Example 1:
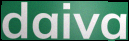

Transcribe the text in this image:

daiva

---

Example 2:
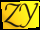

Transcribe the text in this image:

ZY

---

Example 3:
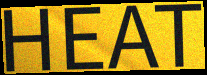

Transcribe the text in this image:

HEAT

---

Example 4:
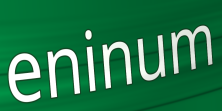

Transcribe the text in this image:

eninum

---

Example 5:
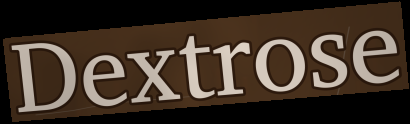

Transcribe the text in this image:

Dextrose